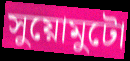
সুয়োমুটো